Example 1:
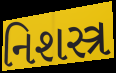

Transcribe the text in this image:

નિશસ્ત્ર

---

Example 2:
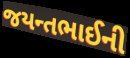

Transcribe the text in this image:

જયન્તભાઈની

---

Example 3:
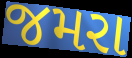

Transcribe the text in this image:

જમરા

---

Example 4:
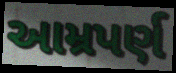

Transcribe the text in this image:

આમ્રપર્ણ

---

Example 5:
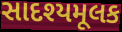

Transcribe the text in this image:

સાદશ્યમૂલક